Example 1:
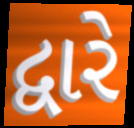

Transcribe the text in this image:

દ્વારે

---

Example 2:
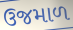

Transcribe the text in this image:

ઉજમાળ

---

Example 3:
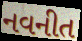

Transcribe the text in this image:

નવનીત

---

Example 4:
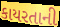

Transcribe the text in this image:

કાયરતાની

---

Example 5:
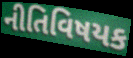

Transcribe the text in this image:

નીતિવિષયક